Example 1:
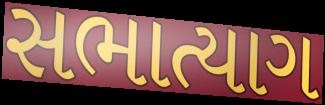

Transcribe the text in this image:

સભાત્યાગ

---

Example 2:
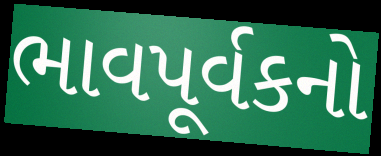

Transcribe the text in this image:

ભાવપૂર્વકનો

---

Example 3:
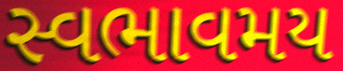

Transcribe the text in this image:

સ્વભાવમય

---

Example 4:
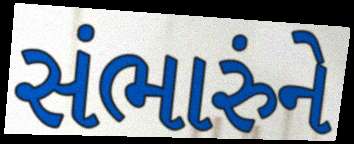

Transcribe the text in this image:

સંભારુંને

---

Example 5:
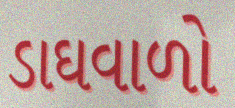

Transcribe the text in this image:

ડાઘવાળો